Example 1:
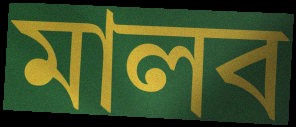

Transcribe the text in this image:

মালব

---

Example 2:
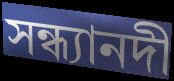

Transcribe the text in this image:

সন্ধ্যানদী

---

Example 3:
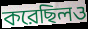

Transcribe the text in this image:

করেছিলও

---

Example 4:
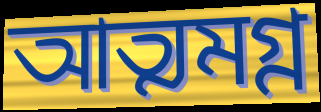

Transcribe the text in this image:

আত্মমগ্ন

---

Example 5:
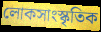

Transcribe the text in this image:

লোকসাংস্কৃতিক